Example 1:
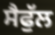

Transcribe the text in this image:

ਸੈਫੁੱਲ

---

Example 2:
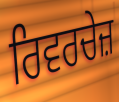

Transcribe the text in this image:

ਰਿਵਰਚੇਜ਼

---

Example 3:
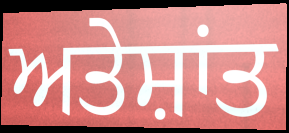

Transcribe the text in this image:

ਅਤੇਸ਼ਾਂਤ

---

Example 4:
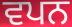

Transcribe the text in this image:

ਵਪਨ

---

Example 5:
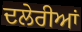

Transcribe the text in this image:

ਦਲੇਰੀਆਂ